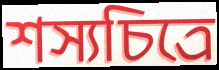
শস্যচিত্রে